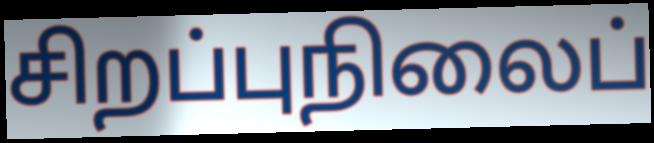
சிறப்புநிலைப்